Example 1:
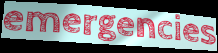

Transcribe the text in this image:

emergencies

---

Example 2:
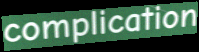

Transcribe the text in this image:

complication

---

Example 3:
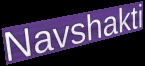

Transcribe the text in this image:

Navshakti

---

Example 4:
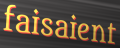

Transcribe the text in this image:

faisaient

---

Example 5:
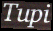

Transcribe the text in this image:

Tupi